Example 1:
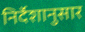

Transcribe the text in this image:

निर्देशानुसार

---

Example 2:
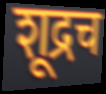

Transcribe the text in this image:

शूद्रच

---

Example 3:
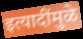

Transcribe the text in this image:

इत्यादींमुळे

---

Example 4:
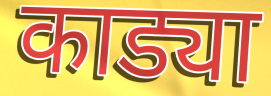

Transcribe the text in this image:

काड्या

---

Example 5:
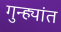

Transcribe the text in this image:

गुन्ह्यांत